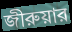
জীরুয়ার